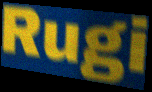
Rugi